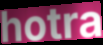
hotra